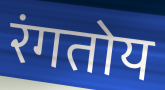
रंगतोय